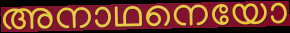
അനാഥനെയോ